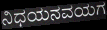
ನಿಧಯನವಯಗ